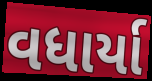
વધાર્યા